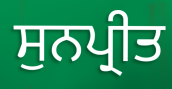
ਸੁਨਪ੍ਰੀਤ